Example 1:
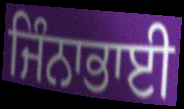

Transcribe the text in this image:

ਜਿੰਨਾਭਾਈ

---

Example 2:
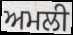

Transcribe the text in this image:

ਅਮਲੀ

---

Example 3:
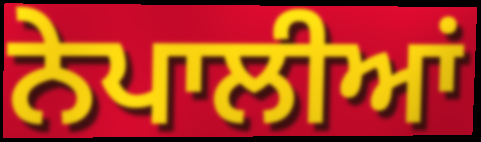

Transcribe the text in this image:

ਨੇਪਾਲੀਆਂ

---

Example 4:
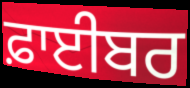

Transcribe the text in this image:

ਫ਼ਾਈਬਰ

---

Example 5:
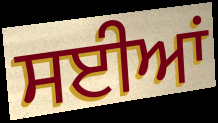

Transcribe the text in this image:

ਸਈਆਂ